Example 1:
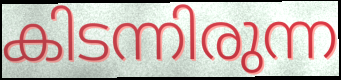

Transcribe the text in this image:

കിടന്നിരുന്ന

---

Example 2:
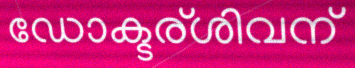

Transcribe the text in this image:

ഡോക്ടര്ശിവന്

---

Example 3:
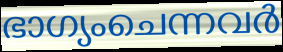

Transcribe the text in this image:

ഭാഗ്യംചെന്നവർ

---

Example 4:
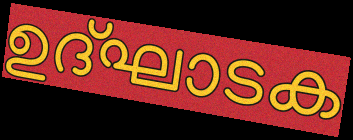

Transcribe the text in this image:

ഉദ്ഘാടക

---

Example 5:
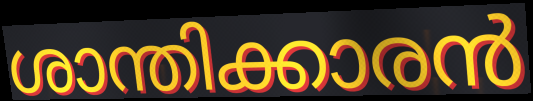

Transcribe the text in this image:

ശാന്തിക്കാരൻ